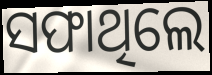
ସଫାଥିଲେ